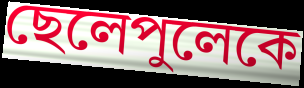
ছেলেপুলেকে